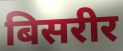
बिसरीर